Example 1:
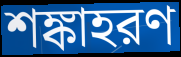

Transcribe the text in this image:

শঙ্কাহরণ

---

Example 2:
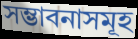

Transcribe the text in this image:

সম্ভাবনাসমূহ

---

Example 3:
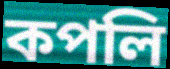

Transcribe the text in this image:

কপলি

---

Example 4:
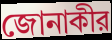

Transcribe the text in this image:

জোনাকীর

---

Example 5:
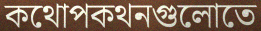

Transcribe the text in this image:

কথোপকথনগুলোতে